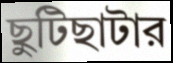
ছুটিছাটার